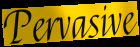
Pervasive